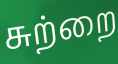
சுற்றை